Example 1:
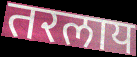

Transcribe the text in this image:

तरलाय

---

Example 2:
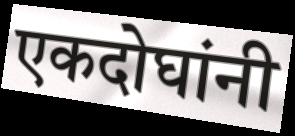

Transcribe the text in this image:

एकदोघांनी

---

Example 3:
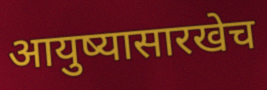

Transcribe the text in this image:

आयुष्यासारखेच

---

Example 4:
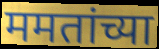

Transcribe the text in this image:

ममतांच्या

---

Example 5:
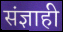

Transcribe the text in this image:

संज्ञाही